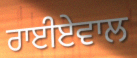
ਰਾਈਏਵਾਲ